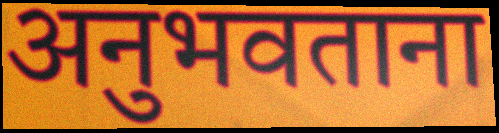
अनुभवताना